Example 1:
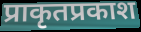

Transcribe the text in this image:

प्राकृतप्रकाश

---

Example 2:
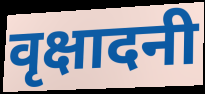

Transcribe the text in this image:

वृक्षादनी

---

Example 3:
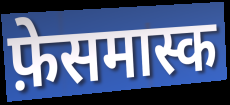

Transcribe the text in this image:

फ़ेसमास्क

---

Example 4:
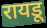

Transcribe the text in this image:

रायडू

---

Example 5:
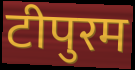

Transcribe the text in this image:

टीपुरम